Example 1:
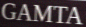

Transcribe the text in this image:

GAMTA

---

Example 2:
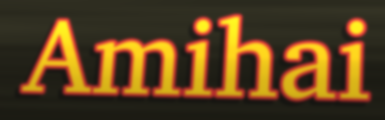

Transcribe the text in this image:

Amihai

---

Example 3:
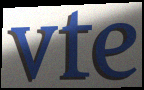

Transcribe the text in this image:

vte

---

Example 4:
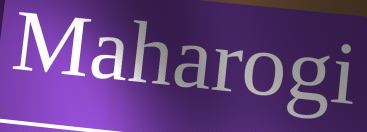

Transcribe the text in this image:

Maharogi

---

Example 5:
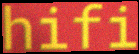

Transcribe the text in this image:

hifi